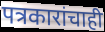
पत्रकारांचाही